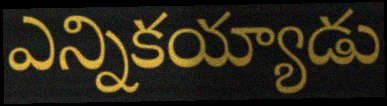
ఎన్నికయ్యాడు